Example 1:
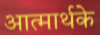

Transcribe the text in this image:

आत्मार्थके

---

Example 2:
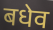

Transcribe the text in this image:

बधेव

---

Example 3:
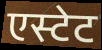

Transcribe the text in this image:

एस्टेट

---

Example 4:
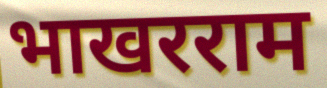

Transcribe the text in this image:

भाखरराम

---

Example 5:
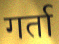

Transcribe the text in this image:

गर्ता